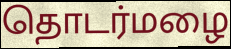
தொடர்மழை